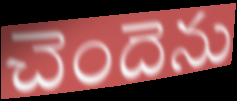
చెందెను